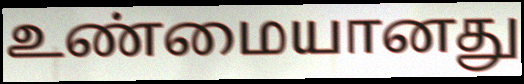
உண்மையானது